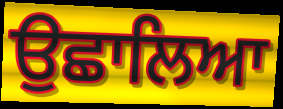
ਉਛਾਲਿਆ